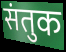
संतुक